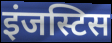
इंजस्टिस